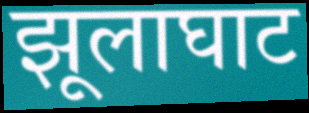
झूलाघाट